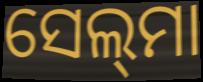
ସେଲ୍‌ମା